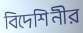
বিদেশিনীর